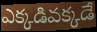
ఎక్కడివక్కడే